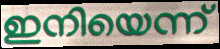
ഇനിയെന്ന്